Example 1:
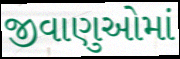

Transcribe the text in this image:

જીવાણુઓમાં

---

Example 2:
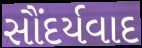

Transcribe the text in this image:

સૌંદર્યવાદ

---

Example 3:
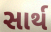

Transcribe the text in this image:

સાર્થ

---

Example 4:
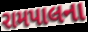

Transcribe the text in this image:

રામપાલના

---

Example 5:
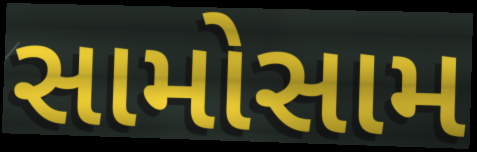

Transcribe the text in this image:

સામોસામ